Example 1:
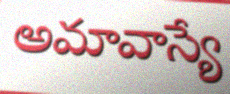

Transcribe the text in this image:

అమావాస్యే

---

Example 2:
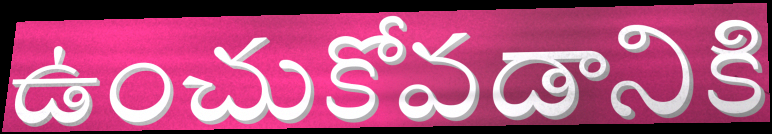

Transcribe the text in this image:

ఉంచుకోవడానికి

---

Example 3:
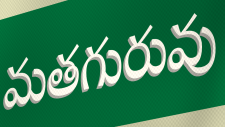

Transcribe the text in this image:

మతగురువు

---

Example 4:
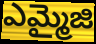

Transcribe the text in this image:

ఎమ్మైజి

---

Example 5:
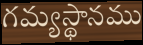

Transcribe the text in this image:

గమ్యస్థానము